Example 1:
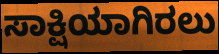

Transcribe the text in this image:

ಸಾಕ್ಷಿಯಾಗಿರಲು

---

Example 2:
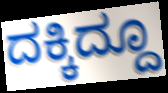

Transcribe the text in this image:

ದಕ್ಕಿದ್ದೂ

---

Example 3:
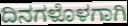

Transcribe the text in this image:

ದಿನಗಳೊಳಗಾಗಿ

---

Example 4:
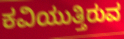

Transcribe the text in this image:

ಕವಿಯುತ್ತಿರುವ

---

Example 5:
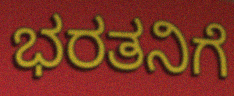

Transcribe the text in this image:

ಭರತನಿಗೆ